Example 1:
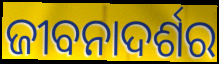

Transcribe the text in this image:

ଜୀବନାଦର୍ଶର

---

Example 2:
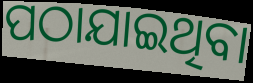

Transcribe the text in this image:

ପଠାଯାଇଥିବା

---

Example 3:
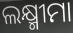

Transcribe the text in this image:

ଲକ୍ଷ୍ମୀମା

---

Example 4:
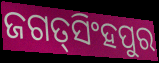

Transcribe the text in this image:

ଜଗତ୍‌ସିଂହପୁର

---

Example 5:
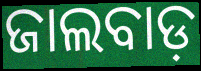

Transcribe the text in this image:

ଜାଲବାଡ଼